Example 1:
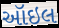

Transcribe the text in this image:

ઑઇલ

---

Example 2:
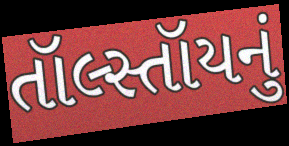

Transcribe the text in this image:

તૉલ્સ્તૉયનું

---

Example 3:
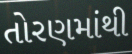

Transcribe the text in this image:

તોરણમાંથી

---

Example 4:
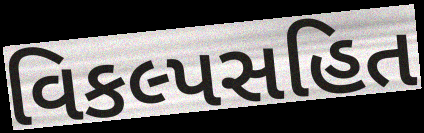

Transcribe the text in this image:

વિકલ્પસહિત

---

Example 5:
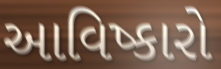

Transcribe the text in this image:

આવિષ્કારો